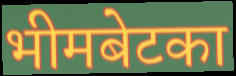
भीमबेटका